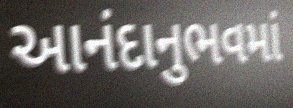
આનંદાનુભવમાં